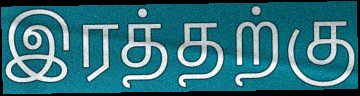
இரத்தற்கு